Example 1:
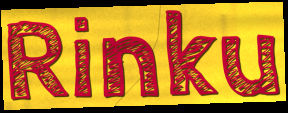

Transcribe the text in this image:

Rinku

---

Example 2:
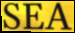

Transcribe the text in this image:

SEA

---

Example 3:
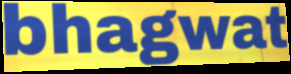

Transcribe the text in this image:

bhagwat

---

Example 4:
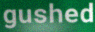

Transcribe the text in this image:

gushed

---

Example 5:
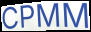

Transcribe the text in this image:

CPMM